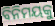
ବିନିମୟକୁ